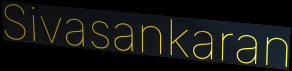
Sivasankaran